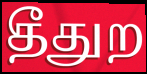
தீதுற